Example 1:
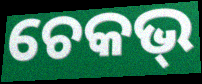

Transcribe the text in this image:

ଚେକଭ୍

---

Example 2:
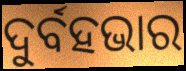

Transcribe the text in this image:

ଦୁର୍ବହଭାର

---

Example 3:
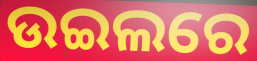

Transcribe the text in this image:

ଉଇଲରେ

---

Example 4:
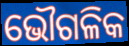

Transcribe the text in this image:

ଭୌଗଳିକ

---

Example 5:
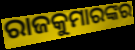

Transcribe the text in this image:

ରାଜକୁମାରଙ୍କର